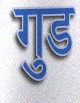
गुड